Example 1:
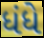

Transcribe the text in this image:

ધંધે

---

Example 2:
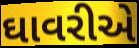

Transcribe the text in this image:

ઘાવરીએ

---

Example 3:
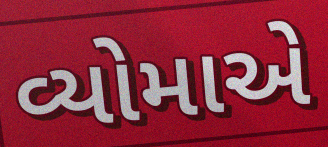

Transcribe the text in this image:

વ્યોમાએ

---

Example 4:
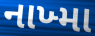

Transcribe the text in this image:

નાખ્મા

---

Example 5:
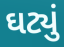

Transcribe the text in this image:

ઘટ્યું